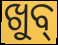
ଖୁବ୍